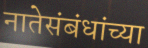
नातेसंबंधांच्या